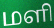
மளி